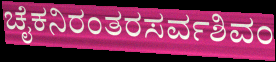
ಚೈಕನಿರಂತರಸರ್ವಶಿವಂ